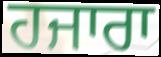
ਹਜਾਰਾ